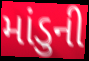
માંડુની